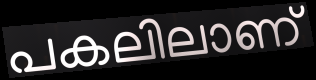
പകലിലാണ്